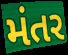
મંતર